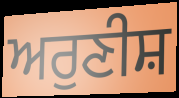
ਅਰੁਣੀਸ਼